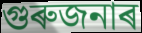
গুৰুজনাৰ